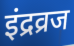
इंद्रव्रज